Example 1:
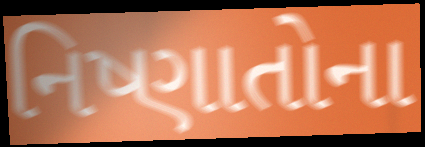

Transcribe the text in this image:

નિષ્ણાતોના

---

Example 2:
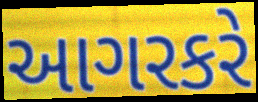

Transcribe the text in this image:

આગરકરે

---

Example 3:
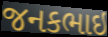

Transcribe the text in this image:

જનકભાઇ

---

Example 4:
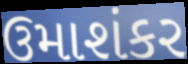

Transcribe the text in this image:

ઉમાશંકર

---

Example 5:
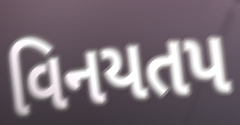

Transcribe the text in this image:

વિનયતપ